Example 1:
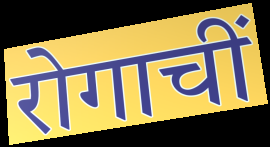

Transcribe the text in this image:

रोगाचीं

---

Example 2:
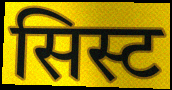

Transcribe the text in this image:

सिस्ट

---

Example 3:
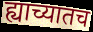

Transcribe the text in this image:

ह्याच्यातच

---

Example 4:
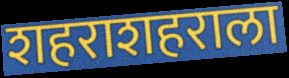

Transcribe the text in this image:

शहराशहराला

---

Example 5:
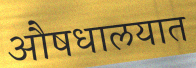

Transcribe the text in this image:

औषधालयात